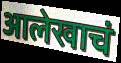
आलेखाचं